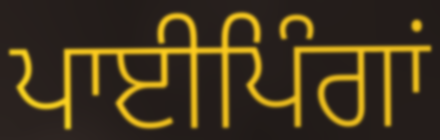
ਪਾਈਪਿੰਗਾਂ